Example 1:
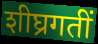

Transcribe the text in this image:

शीघ्रगतीं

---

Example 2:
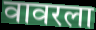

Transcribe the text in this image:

वावरला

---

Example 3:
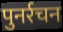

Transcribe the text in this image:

पुनर्रचन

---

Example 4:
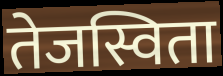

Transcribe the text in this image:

तेजस्विता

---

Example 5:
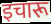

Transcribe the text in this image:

इचारू